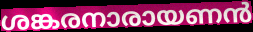
ശങ്കരനാരായണൻ